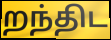
றந்திட